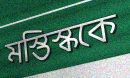
মস্তিস্ককে